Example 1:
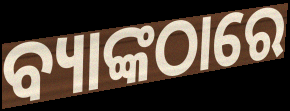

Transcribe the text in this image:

ବ୍ୟାଙ୍କଠାରେ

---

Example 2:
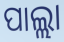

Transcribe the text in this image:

ପାଲ୍ଲା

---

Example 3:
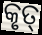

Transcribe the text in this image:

କୃତ୍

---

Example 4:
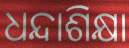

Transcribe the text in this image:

ଧନ୍ଦାଶିକ୍ଷା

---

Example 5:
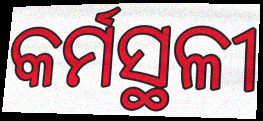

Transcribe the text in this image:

କର୍ମସ୍ଥଳୀ